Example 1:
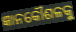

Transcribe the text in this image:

ଜ୍ଞାନକୌଶଳକୁ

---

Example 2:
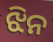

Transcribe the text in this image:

ଝିନ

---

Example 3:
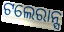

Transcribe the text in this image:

ଟଲେରାନ୍ସ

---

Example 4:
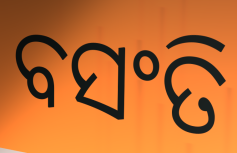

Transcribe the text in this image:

ବସଂତି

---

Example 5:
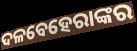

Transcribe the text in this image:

ଦଳବେହେରାଙ୍କର